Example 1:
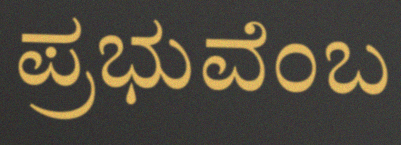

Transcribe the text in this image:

ಪ್ರಭುವೆಂಬ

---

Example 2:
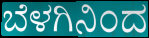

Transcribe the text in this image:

ಬೆಳಗಿನಿಂದ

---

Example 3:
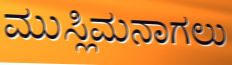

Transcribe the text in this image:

ಮುಸ್ಲಿಮನಾಗಲು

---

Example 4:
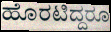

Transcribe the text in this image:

ಹೊರಟಿದ್ದರೂ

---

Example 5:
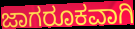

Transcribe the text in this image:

ಜಾಗರೂಕವಾಗಿ